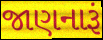
જાણનારૂં